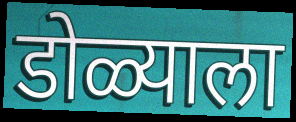
डोळ्याला